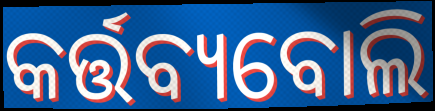
କର୍ତ୍ତବ୍ୟବୋଲି